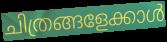
ചിത്രങ്ങളേക്കാൾ